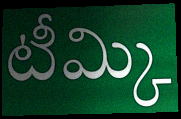
టీమ్కి